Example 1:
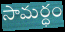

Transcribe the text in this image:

సామర్ధం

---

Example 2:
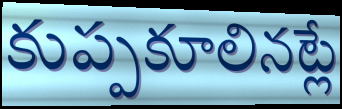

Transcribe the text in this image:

కుప్పకూలినట్లే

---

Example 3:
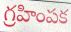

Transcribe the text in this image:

గ్రహింపక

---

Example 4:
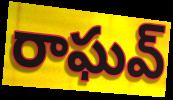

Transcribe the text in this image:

రాఘవ్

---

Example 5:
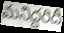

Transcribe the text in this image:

మనిద్దరిదీ